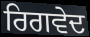
ਰਿਗਵੇਦ